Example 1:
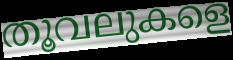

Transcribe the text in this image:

തൂവലുകളെ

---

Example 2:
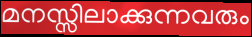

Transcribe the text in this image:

മനസ്സിലാക്കുന്നവരും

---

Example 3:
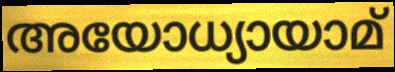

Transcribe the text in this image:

അയോധ്യായാമ്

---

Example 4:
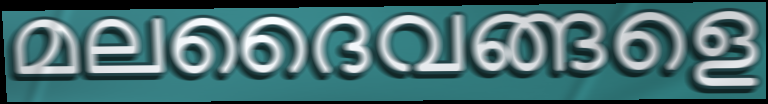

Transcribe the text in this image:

മലദൈവങ്ങളെ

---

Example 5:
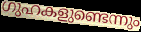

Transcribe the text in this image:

ഗുഹകളുണ്ടെന്നും